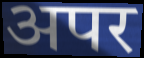
अपर